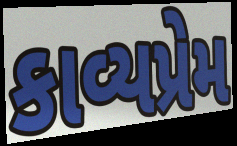
કાવ્યપ્રેમ